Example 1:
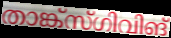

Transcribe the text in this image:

താങ്ക്സ്ഗിവിങ്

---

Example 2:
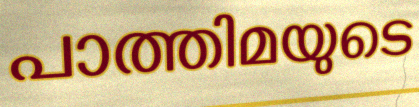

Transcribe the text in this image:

പാത്തിമയുടെ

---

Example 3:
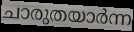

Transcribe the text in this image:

ചാരുതയാർന്ന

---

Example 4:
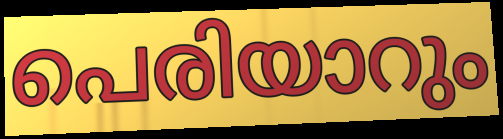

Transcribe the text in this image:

പെരിയാറും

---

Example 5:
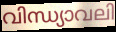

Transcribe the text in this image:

വിന്ധ്യാവലി